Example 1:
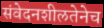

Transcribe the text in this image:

संवेदनशीलतेनेच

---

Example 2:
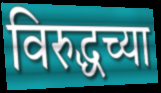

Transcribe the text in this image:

विरुद्धच्या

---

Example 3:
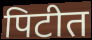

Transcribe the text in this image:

पिटीत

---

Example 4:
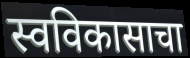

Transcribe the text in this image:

स्वविकासाचा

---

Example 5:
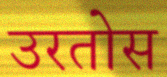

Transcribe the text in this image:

उरतोस